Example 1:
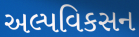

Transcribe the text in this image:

અલ્પવિકસન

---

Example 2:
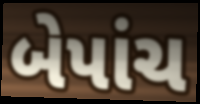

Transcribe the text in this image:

બેપાંચ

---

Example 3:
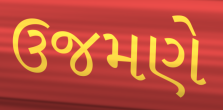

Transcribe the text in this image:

ઉજમણે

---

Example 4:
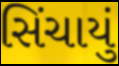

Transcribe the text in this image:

સિંચાયું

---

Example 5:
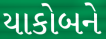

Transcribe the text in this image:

યાકોબને